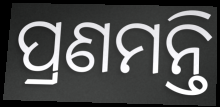
ପ୍ରଣମନ୍ତି